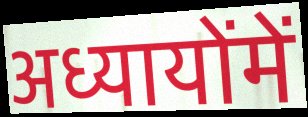
अध्यायोंमें